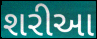
શરીઆ